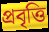
প্ৰবৃত্তি